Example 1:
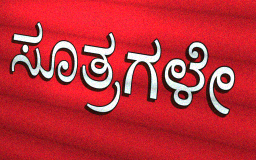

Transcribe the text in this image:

ಸೂತ್ರಗಳೇ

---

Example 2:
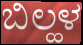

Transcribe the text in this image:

ಬಿಲ್ಹಳ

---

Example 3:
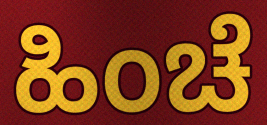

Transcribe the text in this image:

ಹಿಂಚೆ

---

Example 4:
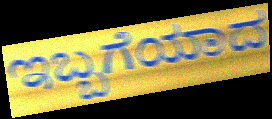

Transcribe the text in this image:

ಇಬ್ಬಗೆಯಾದ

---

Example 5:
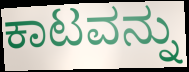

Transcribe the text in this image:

ಕಾಟವನ್ನು